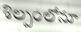
శిల్పంలోనూ